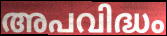
അപവിദ്ധം